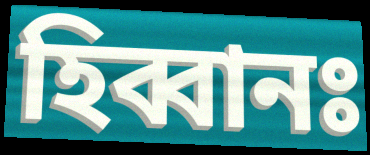
হিব্বানঃ